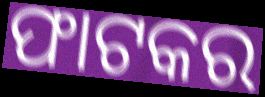
ଫାଟକର